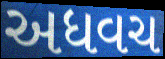
અધવચ